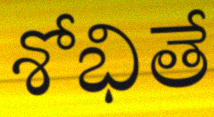
శోభితే